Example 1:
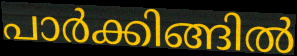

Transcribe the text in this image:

പാർക്കിങ്ങിൽ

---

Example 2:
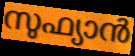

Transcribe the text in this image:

സുഫ്യാൻ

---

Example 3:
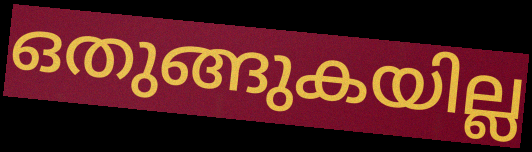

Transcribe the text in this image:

ഒതുങ്ങുകയില്ല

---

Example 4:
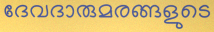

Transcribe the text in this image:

ദേവദാരുമരങ്ങളുടെ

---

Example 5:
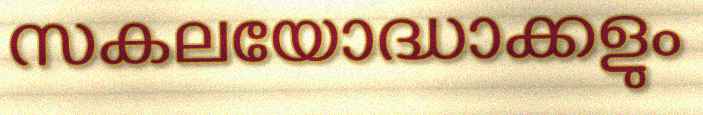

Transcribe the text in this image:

സകലയോദ്ധാക്കളും